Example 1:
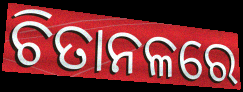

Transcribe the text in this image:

ଚିତାନଳରେ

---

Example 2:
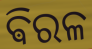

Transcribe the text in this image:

ଵିରଳ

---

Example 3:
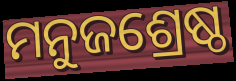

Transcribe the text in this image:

ମନୁଜଶ୍ରେଷ୍ଠ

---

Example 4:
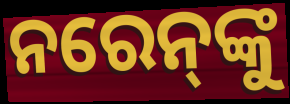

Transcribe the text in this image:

ନରେନ୍‌ଙ୍କୁ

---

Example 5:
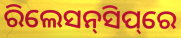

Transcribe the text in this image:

ରିଲେସନ୍‌ସିପ୍‌ରେ